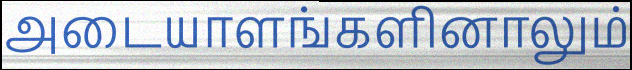
அடையாளங்களினாலும்